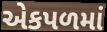
એકપળમાં